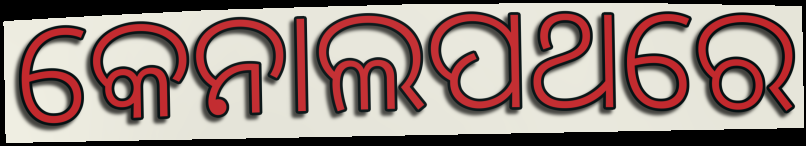
କେନାଲପଥରେ